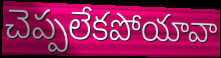
చెప్పలేకపోయావా